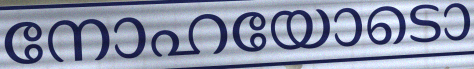
നോഹയോടൊ